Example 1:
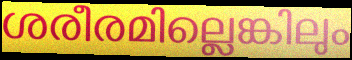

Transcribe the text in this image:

ശരീരമില്ലെങ്കിലും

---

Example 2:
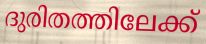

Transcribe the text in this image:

ദുരിതത്തിലേക്ക്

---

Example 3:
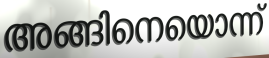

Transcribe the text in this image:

അങ്ങിനെയൊന്ന്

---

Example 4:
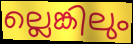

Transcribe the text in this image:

ല്ലെങ്കിലും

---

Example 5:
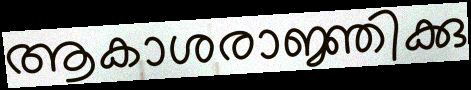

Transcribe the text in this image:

ആകാശരാജ്ഞിക്കു